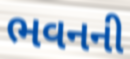
ભવનની